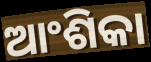
ଆଂଶିକା